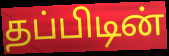
தப்பிடின்